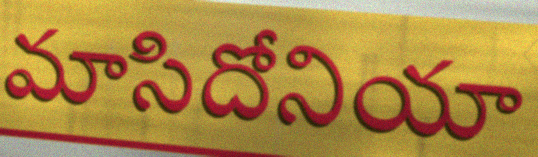
మాసిదోనియా